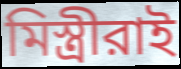
মিস্ত্রীরাই